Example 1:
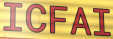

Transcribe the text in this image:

ICFAI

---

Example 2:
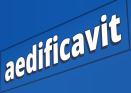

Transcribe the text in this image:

aedificavit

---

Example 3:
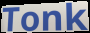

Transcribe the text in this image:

Tonk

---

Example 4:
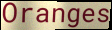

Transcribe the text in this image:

Oranges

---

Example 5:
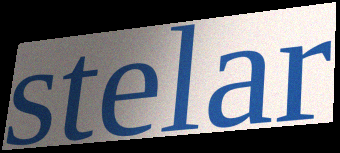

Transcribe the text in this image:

stelar